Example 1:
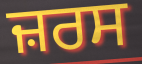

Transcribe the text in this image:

ਜ਼ਰਸ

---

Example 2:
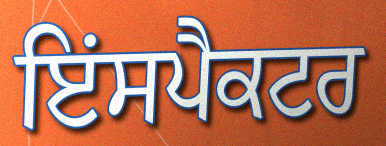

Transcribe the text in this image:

ਇਂਸਪੈਕਟਰ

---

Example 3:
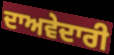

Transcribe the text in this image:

ਦਾਅਵੇਦਾਰੀ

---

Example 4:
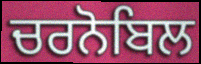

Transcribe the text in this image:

ਚਰਨੋਬਿਲ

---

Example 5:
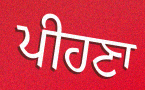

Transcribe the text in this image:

ਪੀਹਣਾ